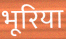
भूरिया